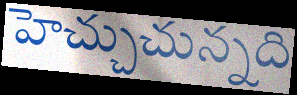
హెచ్చుచున్నది